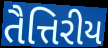
તૈત્તિરીય